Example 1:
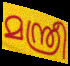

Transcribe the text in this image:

മന്ത്രീ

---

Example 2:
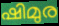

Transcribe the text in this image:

ഷിമുര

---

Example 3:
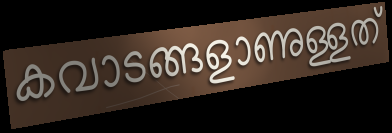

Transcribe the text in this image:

കവാടങ്ങളാണുള്ളത്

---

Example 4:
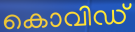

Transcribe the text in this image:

കൊവിഡ്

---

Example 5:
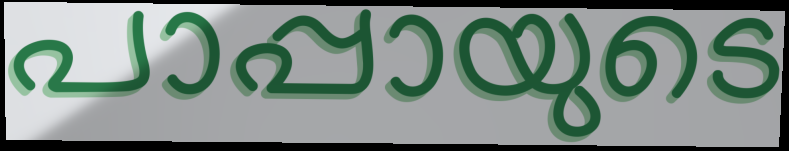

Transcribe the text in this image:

പാപ്പായുടെ